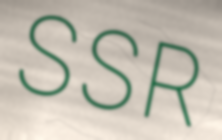
SSR